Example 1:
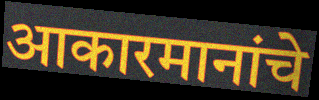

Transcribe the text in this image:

आकारमानांचे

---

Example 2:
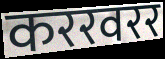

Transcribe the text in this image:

कररवरर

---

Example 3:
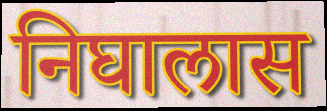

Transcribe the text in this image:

निघालास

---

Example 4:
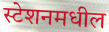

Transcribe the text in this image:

स्टेशनमधील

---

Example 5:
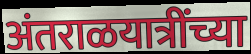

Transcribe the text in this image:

अंतराळयात्रींच्या